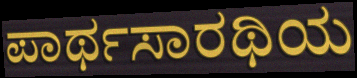
ಪಾರ್ಥಸಾರಥಿಯ